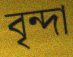
বৃন্দা